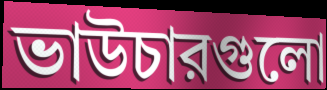
ভাউচারগুলো